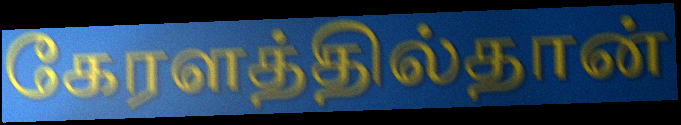
கேரளத்தில்தான்